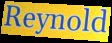
Reynold